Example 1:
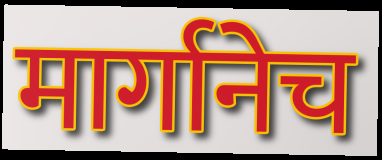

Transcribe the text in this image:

मार्गानेच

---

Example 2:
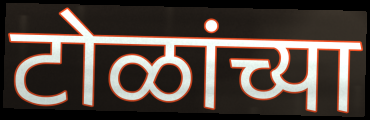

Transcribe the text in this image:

टोळांच्या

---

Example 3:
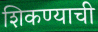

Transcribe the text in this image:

शिकण्याची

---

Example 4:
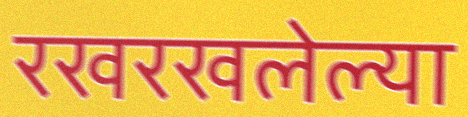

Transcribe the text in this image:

रखरखलेल्या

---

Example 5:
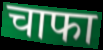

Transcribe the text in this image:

चाफा